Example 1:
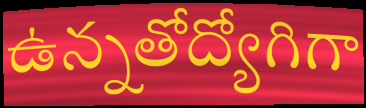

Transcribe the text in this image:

ఉన్నతోద్యోగిగా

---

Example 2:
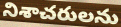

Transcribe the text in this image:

నిశాచరులను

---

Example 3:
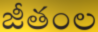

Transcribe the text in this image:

జీతంల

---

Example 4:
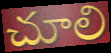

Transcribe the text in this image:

చూలి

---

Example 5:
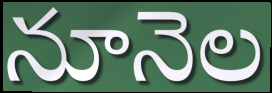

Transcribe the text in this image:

నూనెల